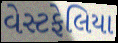
વેસ્ટફેલિયા